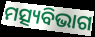
ମତ୍ସ୍ୟବିଭାଗ